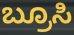
ಬ್ರೂಸಿ